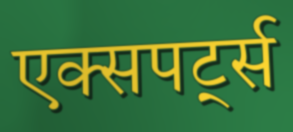
एक्सपर्ट्स